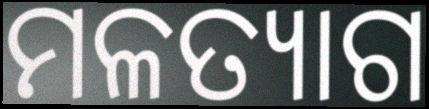
ମଳତ୍ୟାଗ